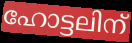
ഹോട്ടലിന്